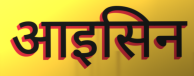
आइसिन